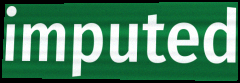
imputed